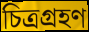
চিত্ৰগ্ৰহণ